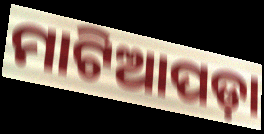
ମାଟିଆପଡ଼ା